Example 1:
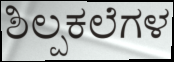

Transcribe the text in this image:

ಶಿಲ್ಪಕಲೆಗಳ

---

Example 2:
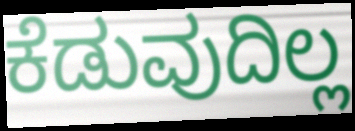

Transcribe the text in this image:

ಕೆಡುವುದಿಲ್ಲ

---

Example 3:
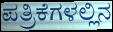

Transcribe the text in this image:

ಪತ್ರಿಕೆಗಳಲ್ಲಿನ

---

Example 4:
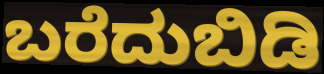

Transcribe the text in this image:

ಬರೆದುಬಿಡಿ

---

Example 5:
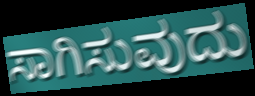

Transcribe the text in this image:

ಸಾಗಿಸುವುದು